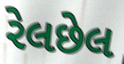
રેલછેલ